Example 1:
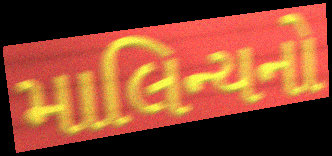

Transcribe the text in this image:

માલિન્યનો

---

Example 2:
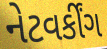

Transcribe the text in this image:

નેટવર્કીંગ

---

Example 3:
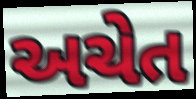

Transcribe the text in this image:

અચેત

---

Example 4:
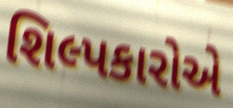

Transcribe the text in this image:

શિલ્પકારોએ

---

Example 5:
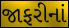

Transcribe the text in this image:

જાફરીનાં